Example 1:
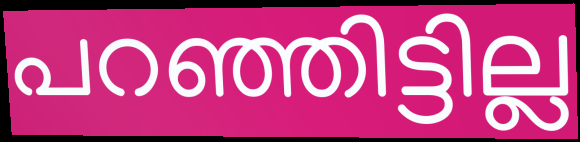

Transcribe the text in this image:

പറഞ്ഞിട്ടില്ല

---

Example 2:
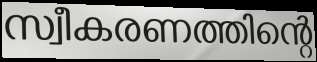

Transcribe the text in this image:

സ്വീകരണത്തിന്റെ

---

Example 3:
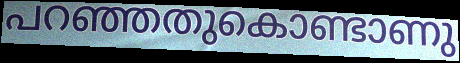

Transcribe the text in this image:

പറഞ്ഞതുകൊണ്ടാണു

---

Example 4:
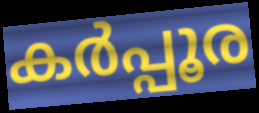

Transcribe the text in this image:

കർപ്പൂര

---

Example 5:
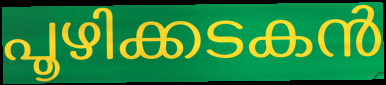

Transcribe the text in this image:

പൂഴിക്കടകൻ